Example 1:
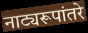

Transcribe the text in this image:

नाट्यरूपांतरे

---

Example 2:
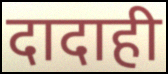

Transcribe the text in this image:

दादाही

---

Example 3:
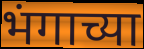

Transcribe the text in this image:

भंगाच्या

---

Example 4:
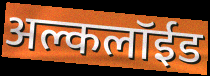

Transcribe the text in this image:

अल्कलॉईड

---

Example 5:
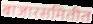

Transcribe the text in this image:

बाजारसमितीत